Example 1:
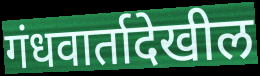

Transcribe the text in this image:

गंधवार्तादेखील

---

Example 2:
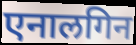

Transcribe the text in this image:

एनालगिन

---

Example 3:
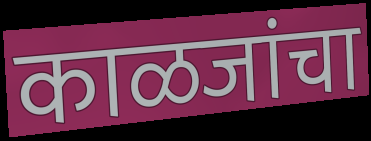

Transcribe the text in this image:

काळजांचा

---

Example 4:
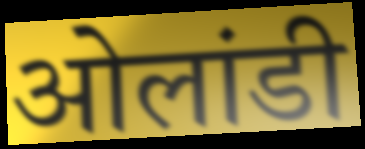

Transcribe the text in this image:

ओलांडी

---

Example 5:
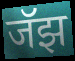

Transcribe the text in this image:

जॅझ